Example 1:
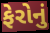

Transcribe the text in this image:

ફેરોનું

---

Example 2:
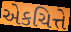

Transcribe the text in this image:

એકચિત્તે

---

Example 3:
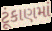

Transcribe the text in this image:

ટૂંકાણમાં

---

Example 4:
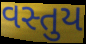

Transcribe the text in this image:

વસ્તુય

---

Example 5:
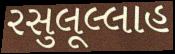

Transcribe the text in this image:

રસુલૂલ્લાહ